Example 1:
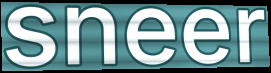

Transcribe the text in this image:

sneer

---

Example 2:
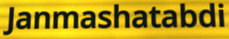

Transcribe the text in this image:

Janmashatabdi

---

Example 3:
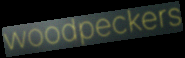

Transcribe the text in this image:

woodpeckers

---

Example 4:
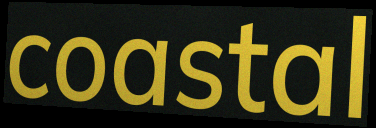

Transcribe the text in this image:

coastal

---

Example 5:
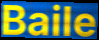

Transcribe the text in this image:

Baile